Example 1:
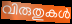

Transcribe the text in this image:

വിരുതുകൾ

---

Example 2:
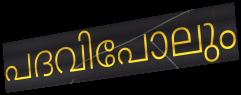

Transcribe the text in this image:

പദവിപോലും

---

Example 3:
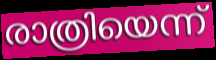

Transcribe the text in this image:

രാത്രിയെന്ന്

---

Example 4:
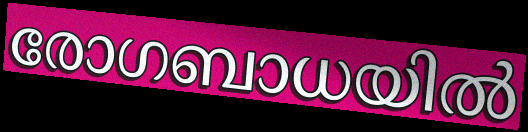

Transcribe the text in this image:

രോഗബാധയിൽ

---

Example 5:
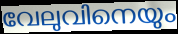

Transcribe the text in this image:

വേലുവിനെയും